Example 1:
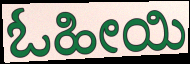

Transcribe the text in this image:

ಓಹೀಯಿ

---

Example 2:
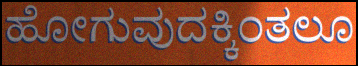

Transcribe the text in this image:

ಹೋಗುವುದಕ್ಕಿಂತಲೂ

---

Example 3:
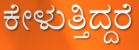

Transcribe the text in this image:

ಕೇಳುತ್ತಿದ್ದರೆ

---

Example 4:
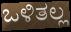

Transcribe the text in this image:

ಒಳಿತಲ್ಲ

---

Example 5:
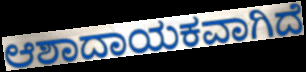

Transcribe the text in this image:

ಆಶಾದಾಯಕವಾಗಿದೆ